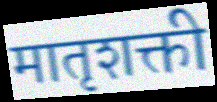
मातृशक्ती